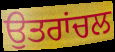
ਉਤਰਾਂਚਲ